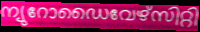
ന്യുറോഡൈവേഴ്സിറ്റി